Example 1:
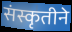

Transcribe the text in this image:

संस्कृतीने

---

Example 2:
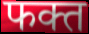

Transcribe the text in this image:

फक्त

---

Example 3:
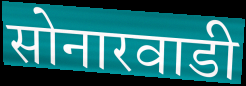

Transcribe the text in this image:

सोनारवाडी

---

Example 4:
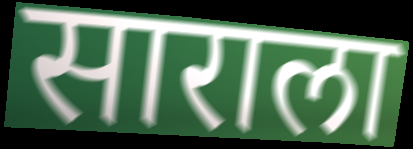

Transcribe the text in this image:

साराला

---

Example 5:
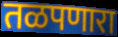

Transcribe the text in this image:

तळपणारा